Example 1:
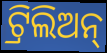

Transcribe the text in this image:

ଟ୍ରିଲିଅନ୍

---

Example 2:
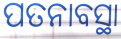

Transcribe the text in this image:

ପତନାବସ୍ଥା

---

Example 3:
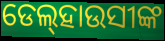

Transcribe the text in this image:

ଡେଲ୍‌ହାଉସୀଙ୍କ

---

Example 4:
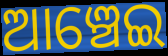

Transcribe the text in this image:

ଆଞ୍ଚେଇ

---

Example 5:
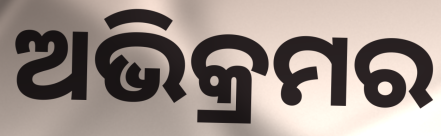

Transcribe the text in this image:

ଅଭିକ୍ରମର